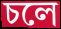
চলে